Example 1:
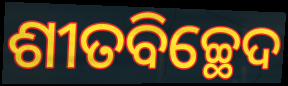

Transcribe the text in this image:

ଶୀତବିଚ୍ଛେଦ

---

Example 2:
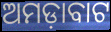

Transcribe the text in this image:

ଅମଡ଼ାବାଟ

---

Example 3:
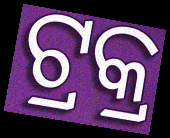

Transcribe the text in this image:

ଟ୍ରକ୍ର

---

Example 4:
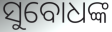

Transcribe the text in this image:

ସୁବୋଧଙ୍କ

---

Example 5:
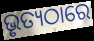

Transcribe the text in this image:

ଭୃତ୍ୟଠାରେ